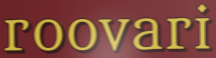
roovari